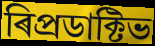
ৰিপ্ৰডাক্টিভ